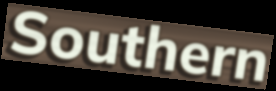
Southern